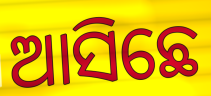
ଆସିଛେ